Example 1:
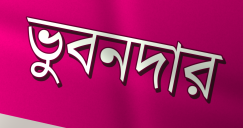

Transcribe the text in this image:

ভুবনদার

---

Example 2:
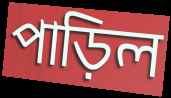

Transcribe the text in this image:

পাড়িল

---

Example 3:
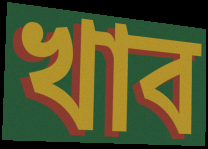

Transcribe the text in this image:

খাব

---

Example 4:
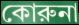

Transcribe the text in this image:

কোরুনা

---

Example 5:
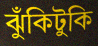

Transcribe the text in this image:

ঝুঁকিটুকি